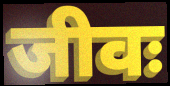
जीवः